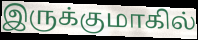
இருக்குமாகில்